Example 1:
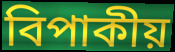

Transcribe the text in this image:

বিপাকীয়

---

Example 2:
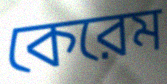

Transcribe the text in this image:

কেরেম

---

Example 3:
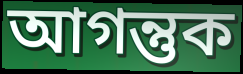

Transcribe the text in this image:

আগন্তুক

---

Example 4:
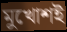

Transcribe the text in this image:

মুখোশই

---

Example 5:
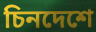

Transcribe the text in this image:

চিনদেশে